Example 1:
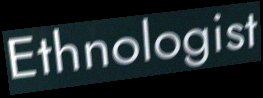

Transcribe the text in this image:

Ethnologist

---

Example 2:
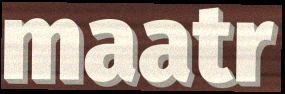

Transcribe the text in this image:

maatr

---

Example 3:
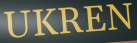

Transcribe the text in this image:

UKREN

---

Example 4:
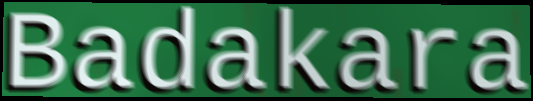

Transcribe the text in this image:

Badakara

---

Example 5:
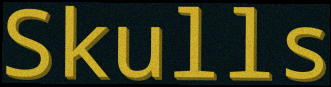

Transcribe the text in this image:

Skulls